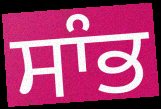
ਸਾੰਭ